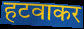
हटवाकर